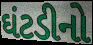
ઘંટડીનો